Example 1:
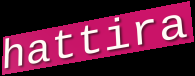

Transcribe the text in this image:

hattira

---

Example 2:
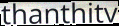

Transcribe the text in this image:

thanthitv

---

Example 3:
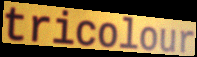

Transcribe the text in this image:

tricolour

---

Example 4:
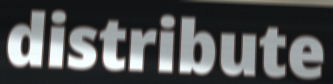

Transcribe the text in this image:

distribute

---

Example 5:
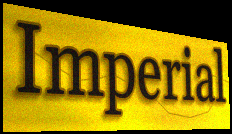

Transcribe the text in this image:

Imperial